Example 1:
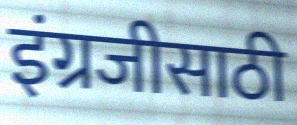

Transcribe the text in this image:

इंग्रजीसाठी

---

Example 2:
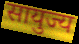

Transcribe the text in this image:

सायुज्य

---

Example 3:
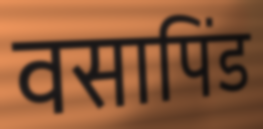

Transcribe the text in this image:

वसापिंड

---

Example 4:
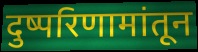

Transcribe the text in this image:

दुष्परिणामांतून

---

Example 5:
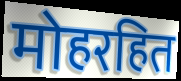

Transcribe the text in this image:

मोहरहित